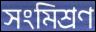
সংমিশ্ৰণ